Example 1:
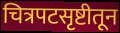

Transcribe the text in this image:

चित्रपटसृष्टीतून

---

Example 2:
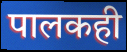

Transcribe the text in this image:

पालकही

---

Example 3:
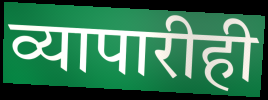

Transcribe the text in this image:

व्यापारीही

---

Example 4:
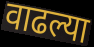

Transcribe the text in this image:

वाढल्या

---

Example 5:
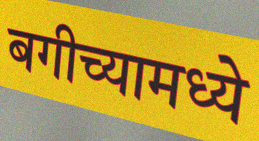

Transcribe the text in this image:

बगीच्यामध्ये